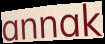
annak